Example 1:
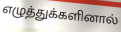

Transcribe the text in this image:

எழுத்துக்களினால்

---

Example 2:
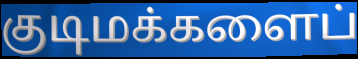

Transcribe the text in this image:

குடிமக்களைப்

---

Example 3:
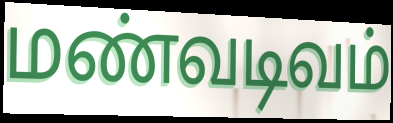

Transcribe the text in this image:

மண்வடிவம்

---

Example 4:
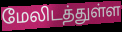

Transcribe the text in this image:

மேலிடத்துள்ள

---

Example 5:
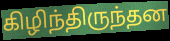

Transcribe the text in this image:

கிழிந்திருந்தன